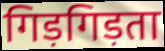
गिड़गिड़ता